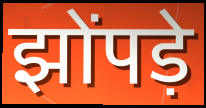
झोंपड़े